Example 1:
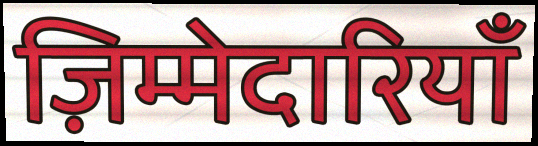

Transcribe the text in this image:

ज़िम्मेदारियाँ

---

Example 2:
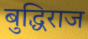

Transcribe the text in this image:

बुद्धिराज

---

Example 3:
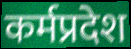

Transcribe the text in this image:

कर्मप्रदेश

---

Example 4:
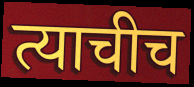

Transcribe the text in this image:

त्याचीच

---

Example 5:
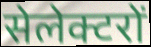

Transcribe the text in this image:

सेलेक्टरों